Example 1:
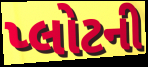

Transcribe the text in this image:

પ્લોટની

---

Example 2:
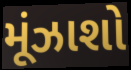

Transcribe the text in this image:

મૂંઝાશો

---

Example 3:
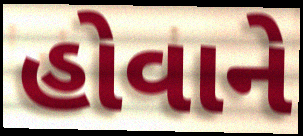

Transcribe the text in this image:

હોવાને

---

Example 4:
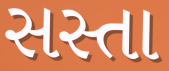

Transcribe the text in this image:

સસ્તા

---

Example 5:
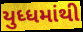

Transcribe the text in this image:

યુધ્ધમાંથી